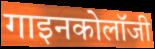
गाइनकोलॉजी